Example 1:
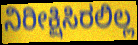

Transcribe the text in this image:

ನಿರೀಕ್ಷಿಸಿರಲಿಲ್ಲ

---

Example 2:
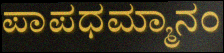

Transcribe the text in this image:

ಪಾಪಧಮ್ಮಾನಂ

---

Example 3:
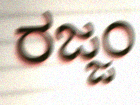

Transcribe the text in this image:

ರಜ್ಜಂ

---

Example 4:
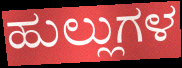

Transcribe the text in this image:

ಹುಲ್ಲುಗಳ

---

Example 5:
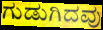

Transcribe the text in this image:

ಗುಡುಗಿದವು